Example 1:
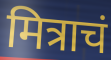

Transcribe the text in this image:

मित्राचं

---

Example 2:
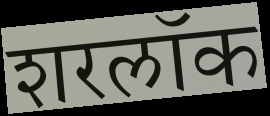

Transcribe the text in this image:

शरलॉक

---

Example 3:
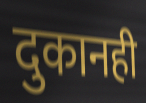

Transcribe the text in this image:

दुकानही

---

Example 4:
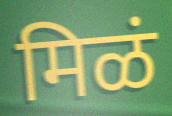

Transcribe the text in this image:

मिळं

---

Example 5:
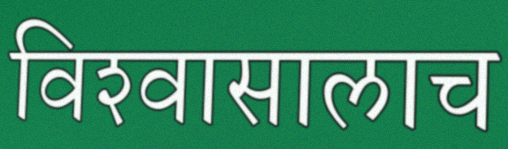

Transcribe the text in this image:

विश्वासालाच